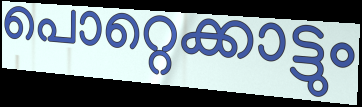
പൊറ്റെക്കാട്ടും